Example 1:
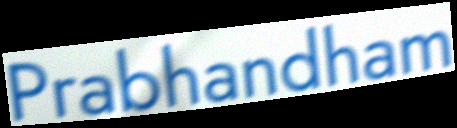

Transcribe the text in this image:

Prabhandham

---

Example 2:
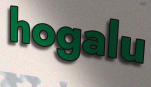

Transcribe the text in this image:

hogalu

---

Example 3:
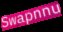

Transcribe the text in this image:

Swapnnu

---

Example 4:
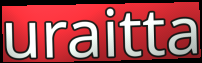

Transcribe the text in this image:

uraitta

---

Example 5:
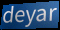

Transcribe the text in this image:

deyar